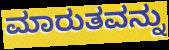
ಮಾರುತವನ್ನು